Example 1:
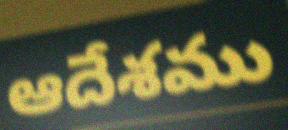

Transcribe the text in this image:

ఆదేశము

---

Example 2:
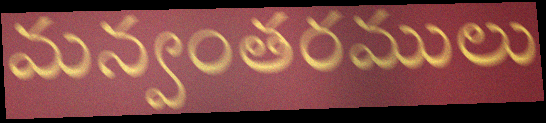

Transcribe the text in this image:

మన్వంతరములు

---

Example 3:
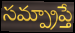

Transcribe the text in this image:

సమ్ప్రాప్తే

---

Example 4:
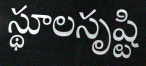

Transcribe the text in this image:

స్థూలసృష్టి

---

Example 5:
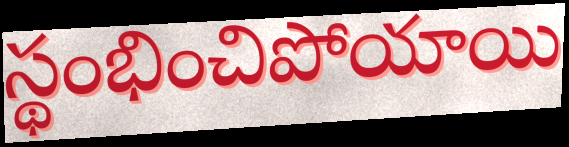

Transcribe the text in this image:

స్థంభించిపోయాయి